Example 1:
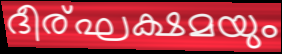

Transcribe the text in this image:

ദീര്ഘക്ഷമയും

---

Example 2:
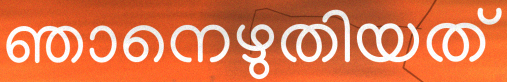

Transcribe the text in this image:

ഞാനെഴുതിയത്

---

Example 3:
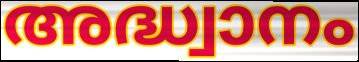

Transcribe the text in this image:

അദ്ധ്വാനം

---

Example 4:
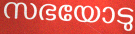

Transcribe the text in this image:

സഭയോടു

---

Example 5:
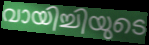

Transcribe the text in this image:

വായിച്ചിയുടെ